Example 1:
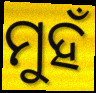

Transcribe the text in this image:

ମୁହଁ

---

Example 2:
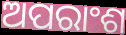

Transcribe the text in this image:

ଅପରାଂଶ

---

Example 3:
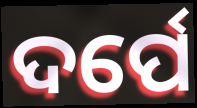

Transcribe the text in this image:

ଦର୍ପେ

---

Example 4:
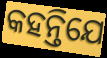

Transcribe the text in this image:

କହନ୍ତିଯେ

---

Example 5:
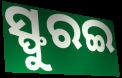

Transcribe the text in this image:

ସ୍ଫୁରଇ